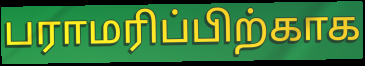
பராமரிப்பிற்காக